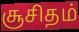
சூசிதம்